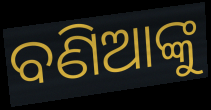
ବଣିଆଙ୍କୁ